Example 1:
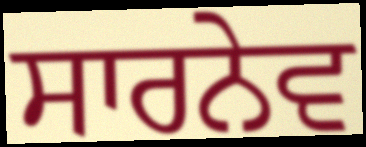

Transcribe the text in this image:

ਸਾਰਨੇਵ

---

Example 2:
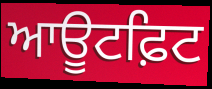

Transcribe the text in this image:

ਆਊਟਫ਼ਿਟ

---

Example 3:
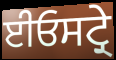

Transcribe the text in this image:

ਈਓਸਟ੍ਰੇ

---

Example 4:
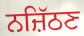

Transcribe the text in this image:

ਨਜ਼ਿੱਠਣ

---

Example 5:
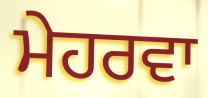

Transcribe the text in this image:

ਮੇਹਰਵਾ